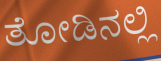
ತೋಡಿನಲ್ಲಿ